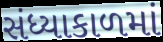
સંધ્યાકાળમાં